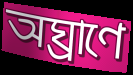
অঘ্রাণে